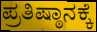
ಪ್ರತಿಷ್ಠಾನಕ್ಕೆ